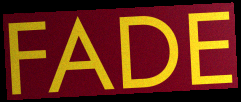
FADE